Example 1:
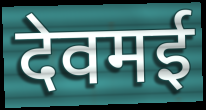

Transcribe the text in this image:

देवमई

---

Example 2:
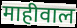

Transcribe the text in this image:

माहीवाल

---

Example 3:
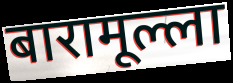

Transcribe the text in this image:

बारामूल्ला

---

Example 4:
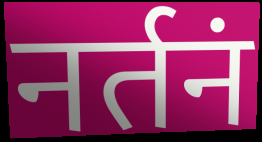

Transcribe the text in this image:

नर्तनं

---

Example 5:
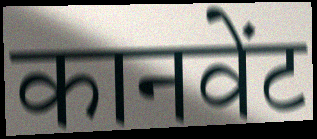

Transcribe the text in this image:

कानवेंट